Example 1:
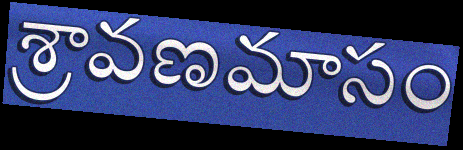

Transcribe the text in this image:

శ్రావణమాసం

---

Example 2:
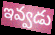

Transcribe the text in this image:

ఇవ్వడు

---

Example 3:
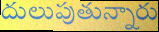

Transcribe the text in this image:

దులుపుతున్నారు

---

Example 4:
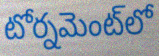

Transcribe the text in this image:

టోర్నమెంట్‌లో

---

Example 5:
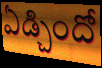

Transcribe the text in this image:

ఏడ్చిందో